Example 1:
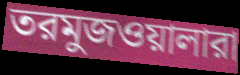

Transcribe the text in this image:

তরমুজওয়ালারা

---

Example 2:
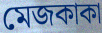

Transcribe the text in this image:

মেজকাকা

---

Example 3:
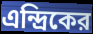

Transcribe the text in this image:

এন্দ্রিকের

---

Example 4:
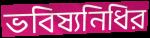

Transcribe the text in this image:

ভবিষ্যনিধির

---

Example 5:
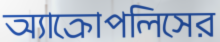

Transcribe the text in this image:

অ্যাক্রোপলিসের